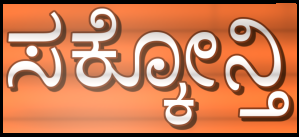
ಸಕ್ಕೋನ್ತಿ